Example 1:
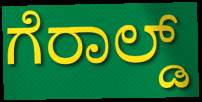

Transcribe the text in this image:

ಗೆರಾಲ್ಡ್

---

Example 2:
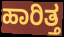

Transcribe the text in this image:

ಹಾರಿತ್ತ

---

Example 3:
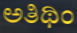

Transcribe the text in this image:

ಅತಿಥಿಂ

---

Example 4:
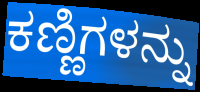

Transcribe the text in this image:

ಕಣ್ಣಿಗಳನ್ನು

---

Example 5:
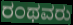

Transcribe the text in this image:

ರಂಥವರು